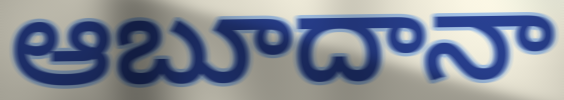
ఆబూదానా